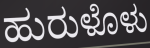
ಹುರುಳೊಳು